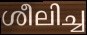
ശീലിച്ച